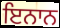
ਇਨਾਨ